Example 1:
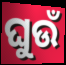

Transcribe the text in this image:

ଘୁଉଁ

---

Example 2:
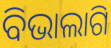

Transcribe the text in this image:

ବିଭାଲାଗି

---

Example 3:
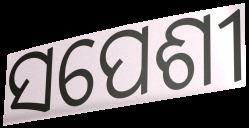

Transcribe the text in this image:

ସପେଶୀ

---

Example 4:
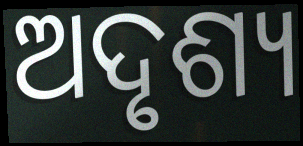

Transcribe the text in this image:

ଅଦୃଶ୍ୟ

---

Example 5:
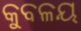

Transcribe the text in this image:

କୁବଳୟ